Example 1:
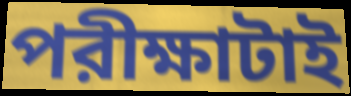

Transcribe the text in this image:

পরীক্ষাটাই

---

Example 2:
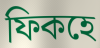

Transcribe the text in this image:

ফিকহে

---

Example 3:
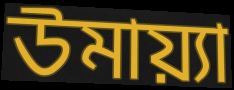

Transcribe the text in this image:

উমায়্যা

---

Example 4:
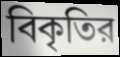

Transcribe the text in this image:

বিকৃতির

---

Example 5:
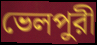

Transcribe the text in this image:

ভেলপুরী